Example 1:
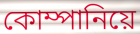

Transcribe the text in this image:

কোম্পানিয়ে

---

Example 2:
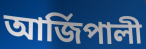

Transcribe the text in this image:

আৰ্জিপালী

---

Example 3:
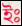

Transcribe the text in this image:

ইঃ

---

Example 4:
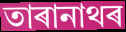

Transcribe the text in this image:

তাৰানাথৰ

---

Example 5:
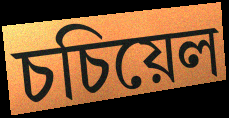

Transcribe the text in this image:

চচিয়েল